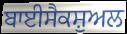
ਬਾਈਸੈਕਸ਼ੁਅਲ